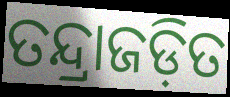
ତନ୍ଦ୍ରାଜଡ଼ିତ